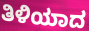
ತಿಳಿಯಾದ